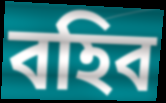
বহিব